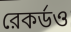
রেকর্ডও